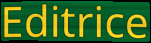
Editrice